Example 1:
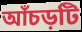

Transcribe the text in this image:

আঁচড়টি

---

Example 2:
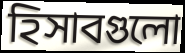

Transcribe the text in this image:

হিসাবগুলো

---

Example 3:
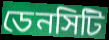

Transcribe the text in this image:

ডেনসিটি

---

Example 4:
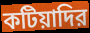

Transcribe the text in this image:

কটিয়াদির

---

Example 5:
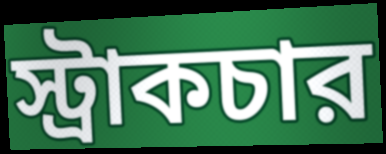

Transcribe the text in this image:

স্ট্রাকচার